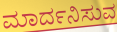
ಮಾರ್ದನಿಸುವ